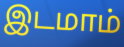
இடமாம்